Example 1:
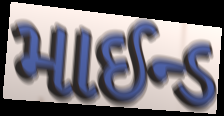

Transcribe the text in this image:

માઈન્ડ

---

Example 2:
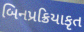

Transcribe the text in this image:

બિનપ્રક્રિયાકૃત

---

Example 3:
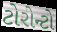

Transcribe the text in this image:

ટોરોન્ટો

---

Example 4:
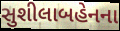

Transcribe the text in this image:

સુશીલાબહેનના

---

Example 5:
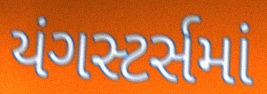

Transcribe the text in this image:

યંગસ્ટર્સમાં